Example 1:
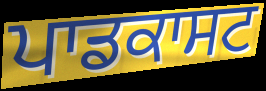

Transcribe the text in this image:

ਪਾਡਕਾਸਟ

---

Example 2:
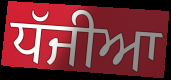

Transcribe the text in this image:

ਧੱਜੀਆ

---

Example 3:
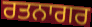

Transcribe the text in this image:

ਰਤਨਾਗਰ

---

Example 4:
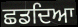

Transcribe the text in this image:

ਛਡਦਿਆ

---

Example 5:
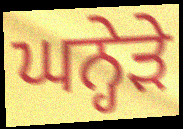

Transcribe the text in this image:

ਘਨ੍ਹੇੜੇ